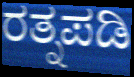
ರತ್ನಪಡಿ